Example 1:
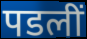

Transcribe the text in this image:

पडलीं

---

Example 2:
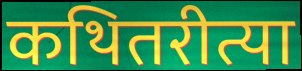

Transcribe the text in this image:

कथितरीत्या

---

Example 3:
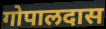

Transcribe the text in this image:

गोपालदास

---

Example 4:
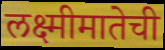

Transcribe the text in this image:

लक्ष्मीमातेची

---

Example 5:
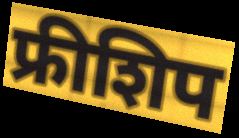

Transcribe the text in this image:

फ्रीशिप